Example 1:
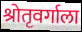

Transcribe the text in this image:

श्रोतृवर्गाला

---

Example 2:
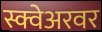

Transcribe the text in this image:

स्क्वेअरवर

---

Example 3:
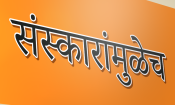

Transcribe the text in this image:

संस्कारांमुळेच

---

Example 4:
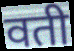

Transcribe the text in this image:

वती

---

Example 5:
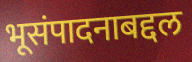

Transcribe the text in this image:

भूसंपादनाबद्दल